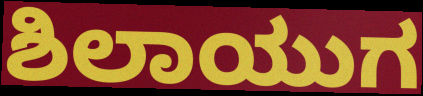
ಶಿಲಾಯುಗ